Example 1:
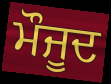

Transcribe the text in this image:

ਮੌਜੂਦ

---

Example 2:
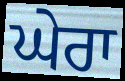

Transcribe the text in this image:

ਘੇਰਾ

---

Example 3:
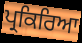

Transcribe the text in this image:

ਪ੍ਰਕਿਰਿਆ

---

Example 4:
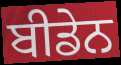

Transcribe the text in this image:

ਬੀਡੇਨ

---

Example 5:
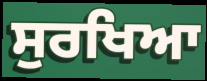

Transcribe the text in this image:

ਸੁਰਖਿਆ